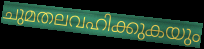
ചുമതലവഹിക്കുകയും